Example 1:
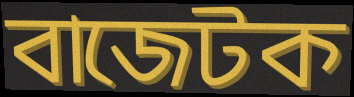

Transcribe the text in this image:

বাজেটক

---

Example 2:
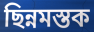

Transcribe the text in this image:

ছিন্নমস্তক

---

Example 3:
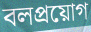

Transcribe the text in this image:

বলপ্ৰয়োগ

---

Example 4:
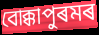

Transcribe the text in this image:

বোক্কাপুৰমৰ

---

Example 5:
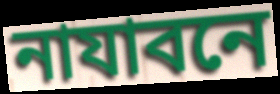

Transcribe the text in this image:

নাযাবনে